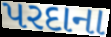
પરદાના